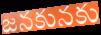
జనకునకు